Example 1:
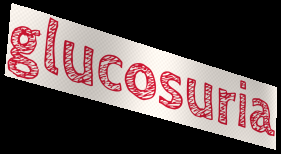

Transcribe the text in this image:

glucosuria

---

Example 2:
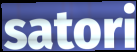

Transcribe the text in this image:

satori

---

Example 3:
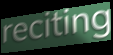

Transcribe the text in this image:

reciting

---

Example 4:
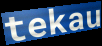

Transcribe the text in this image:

tekau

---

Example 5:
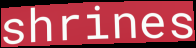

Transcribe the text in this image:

shrines